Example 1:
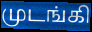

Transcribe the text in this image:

முடங்கி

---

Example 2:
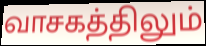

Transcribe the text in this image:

வாசகத்திலும்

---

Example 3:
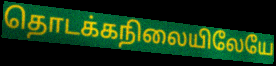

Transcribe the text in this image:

தொடக்கநிலையிலேயே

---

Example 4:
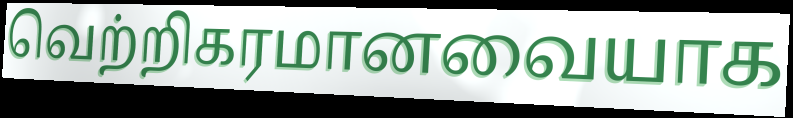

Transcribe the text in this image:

வெற்றிகரமானவையாக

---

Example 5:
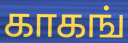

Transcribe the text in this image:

காகங்